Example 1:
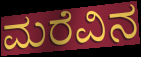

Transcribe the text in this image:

ಮರೆವಿನ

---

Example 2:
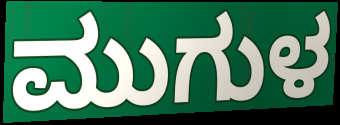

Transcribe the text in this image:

ಮುಗುಳ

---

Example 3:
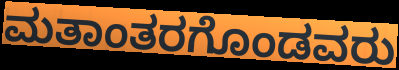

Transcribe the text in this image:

ಮತಾಂತರಗೊಂಡವರು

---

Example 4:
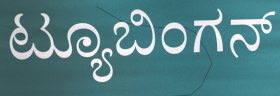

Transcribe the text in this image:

ಟ್ಯೂಬಿಂಗನ್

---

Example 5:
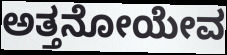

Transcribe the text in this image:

ಅತ್ತನೋಯೇವ